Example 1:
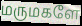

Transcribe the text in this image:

மருமகளே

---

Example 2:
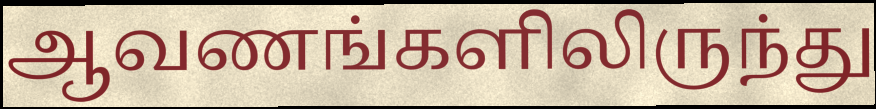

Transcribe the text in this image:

ஆவணங்களிலிருந்து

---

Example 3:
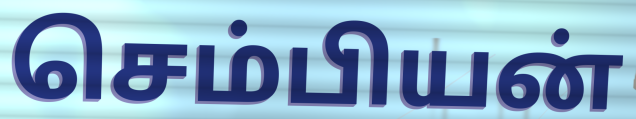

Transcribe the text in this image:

செம்பியன்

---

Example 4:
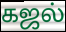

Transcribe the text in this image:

கஜல்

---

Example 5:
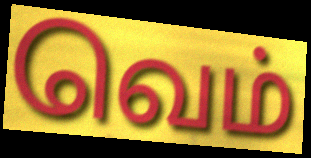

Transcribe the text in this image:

வெம்